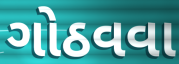
ગોઠવવા